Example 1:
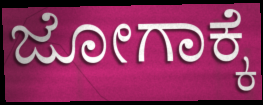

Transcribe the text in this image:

ಜೋಗಾಕ್ಕೆ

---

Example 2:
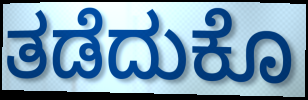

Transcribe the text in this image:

ತಡೆದುಕೊ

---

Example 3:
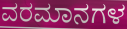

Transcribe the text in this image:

ವರಮಾನಗಳ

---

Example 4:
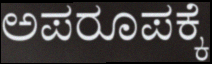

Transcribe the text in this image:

ಅಪರೂಪಕ್ಕೆ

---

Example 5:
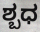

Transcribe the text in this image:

ಶ್ಬಧ